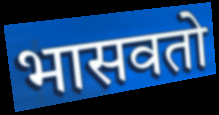
भासवतो